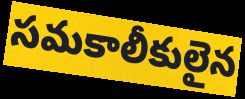
సమకాలీకులైన